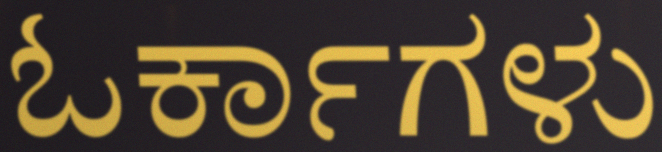
ಓರ್ಕಾಗಳು